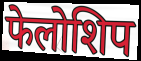
फेलोशिप